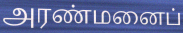
அரண்மனைப்